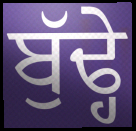
ਬੁੱਢ੍ਹੇ